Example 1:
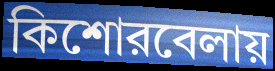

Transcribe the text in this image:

কিশোরবেলায়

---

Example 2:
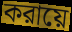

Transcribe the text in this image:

করায়ে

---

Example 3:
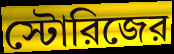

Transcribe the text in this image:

স্টোরিজের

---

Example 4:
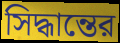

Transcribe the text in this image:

সিদ্ধান্তের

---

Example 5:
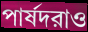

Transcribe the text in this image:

পার্ষদরাও